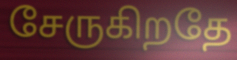
சேருகிறதே